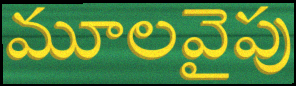
మూలవైపు